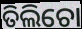
ତିଲିଚୋ